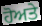
ਹੋਅਤੇ